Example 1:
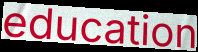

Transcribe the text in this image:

education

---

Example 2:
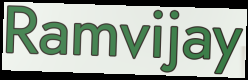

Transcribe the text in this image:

Ramvijay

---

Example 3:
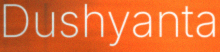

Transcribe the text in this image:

Dushyanta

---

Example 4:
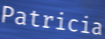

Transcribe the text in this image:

Patricia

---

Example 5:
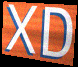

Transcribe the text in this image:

XD